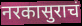
नरकासुराचं